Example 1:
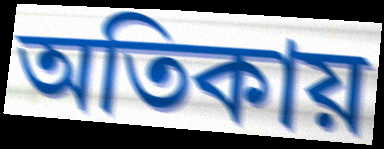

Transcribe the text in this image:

অতিকায়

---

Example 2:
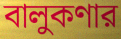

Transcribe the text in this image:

বালুকণার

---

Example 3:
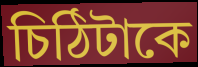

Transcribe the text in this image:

চিঠিটাকে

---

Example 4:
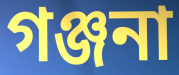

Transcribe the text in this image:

গঞ্জনা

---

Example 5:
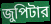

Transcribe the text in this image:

জুপিটার